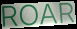
ROAR